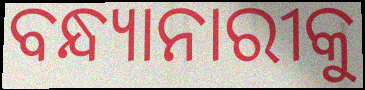
ବନ୍ଧ୍ୟାନାରୀକୁ